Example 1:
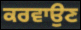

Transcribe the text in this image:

ਕਰਵਾਉਣ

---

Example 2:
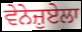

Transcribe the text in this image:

ਵੇਨੇਜ਼ੁਏਲਾ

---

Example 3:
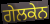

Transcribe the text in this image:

ਗੇਲਕੇਨ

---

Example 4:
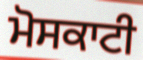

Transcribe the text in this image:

ਮੋਸਕਾਟੀ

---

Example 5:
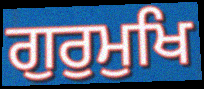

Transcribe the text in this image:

ਗੁਰੁਮੁਖਿ